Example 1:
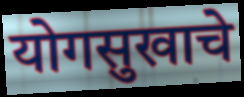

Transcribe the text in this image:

योगसुखाचे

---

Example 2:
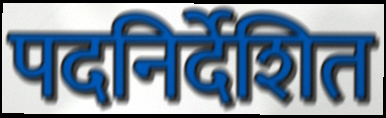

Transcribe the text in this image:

पदनिर्देशित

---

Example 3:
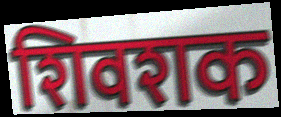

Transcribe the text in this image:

शिवशक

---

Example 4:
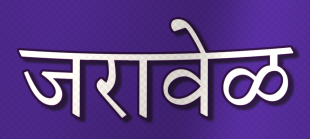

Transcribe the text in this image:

जरावेळ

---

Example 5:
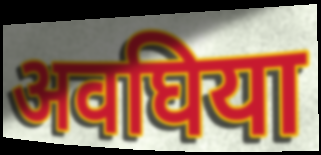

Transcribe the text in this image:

अवघिया